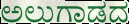
ಅಲುಗಾಡದ